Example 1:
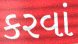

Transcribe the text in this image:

કરવાં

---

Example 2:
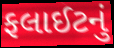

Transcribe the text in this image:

ફલાઈટનું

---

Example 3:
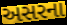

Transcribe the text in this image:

અસરના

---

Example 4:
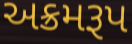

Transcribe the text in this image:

અક્રમરૂપ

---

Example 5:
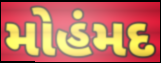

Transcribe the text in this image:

મોહંમદ